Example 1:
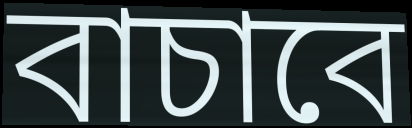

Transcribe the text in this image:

বাচাবে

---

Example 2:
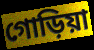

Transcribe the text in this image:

গোড়িয়া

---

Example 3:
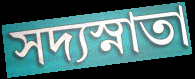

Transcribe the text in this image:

সদ্যস্নাতা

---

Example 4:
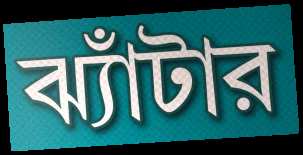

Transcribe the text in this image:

ঝ্যাঁটার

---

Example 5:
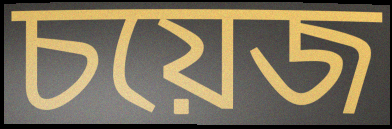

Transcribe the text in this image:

চয়েজ